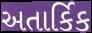
અતાર્કિક